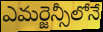
ఎమర్జెన్సీలోనే